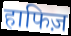
हाफिज़